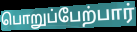
பொறுப்பேற்பார்